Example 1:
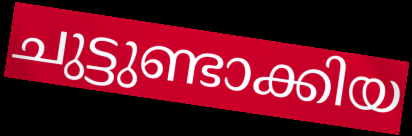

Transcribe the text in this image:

ചുട്ടുണ്ടാക്കിയ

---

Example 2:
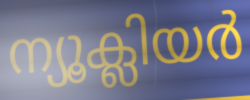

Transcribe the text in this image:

ന്യൂക്ലിയർ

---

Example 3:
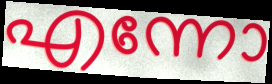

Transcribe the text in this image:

എന്നോ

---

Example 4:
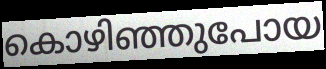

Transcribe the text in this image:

കൊഴിഞ്ഞുപോയ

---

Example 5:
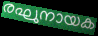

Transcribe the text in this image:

രഘുനായക